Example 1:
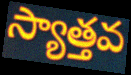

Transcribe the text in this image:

స్యాత్తవ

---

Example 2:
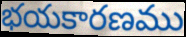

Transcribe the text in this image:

భయకారణము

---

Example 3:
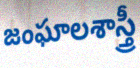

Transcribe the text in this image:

జంఘాలశాస్త్రీ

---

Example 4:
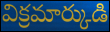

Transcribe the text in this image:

విక్రమార్కుడి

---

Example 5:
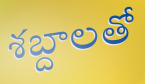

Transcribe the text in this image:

శబ్దాలతో